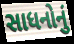
સાધનોનું